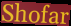
Shofar